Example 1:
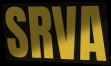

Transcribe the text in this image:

SRVA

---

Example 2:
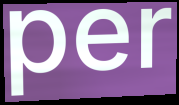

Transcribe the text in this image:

per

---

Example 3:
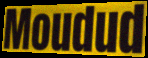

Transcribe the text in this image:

Moudud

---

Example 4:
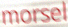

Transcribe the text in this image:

morsel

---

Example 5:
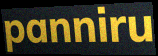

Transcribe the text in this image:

panniru